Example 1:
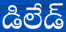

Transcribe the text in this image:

డిలేడ్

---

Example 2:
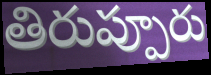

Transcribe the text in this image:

తిరుప్పూరు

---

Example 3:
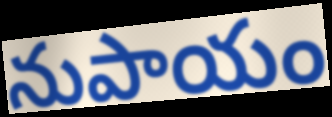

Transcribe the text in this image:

నుపాయం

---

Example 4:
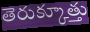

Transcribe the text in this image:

తెరుక్కూత్తు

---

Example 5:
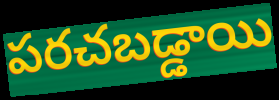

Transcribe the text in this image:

పరచబడ్డాయి